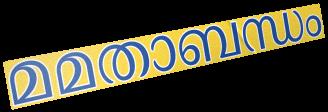
മമതാബന്ധം